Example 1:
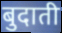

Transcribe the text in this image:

बुदाती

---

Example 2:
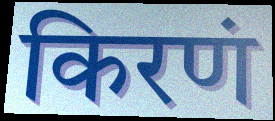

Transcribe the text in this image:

किरणं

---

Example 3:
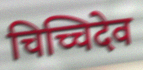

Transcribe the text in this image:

चिच्चिदेव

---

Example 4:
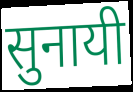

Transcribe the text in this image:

सुनायी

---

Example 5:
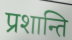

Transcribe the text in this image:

प्रशान्ति